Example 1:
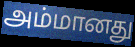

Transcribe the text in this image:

அம்மானது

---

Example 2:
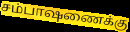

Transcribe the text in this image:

சம்பாஷணைக்கு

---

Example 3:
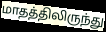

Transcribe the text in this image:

மாதத்திலிருந்து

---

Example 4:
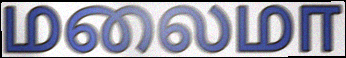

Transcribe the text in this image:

மலைமா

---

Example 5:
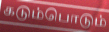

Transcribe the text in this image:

கடும்பொடும்